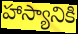
హాస్యానికి